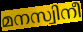
മനസ്വിനീ